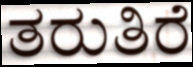
ತರುತಿರೆ